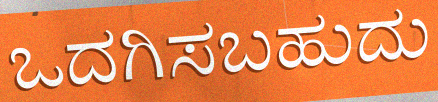
ಒದಗಿಸಬಹುದು